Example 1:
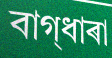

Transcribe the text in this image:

বাগ্‌ধাৰা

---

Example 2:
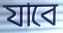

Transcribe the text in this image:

যাবে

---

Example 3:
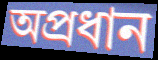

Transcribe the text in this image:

অপ্ৰধান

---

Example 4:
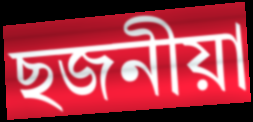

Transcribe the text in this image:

ছজনীয়া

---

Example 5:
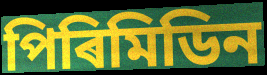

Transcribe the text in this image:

পিৰিমিডিন